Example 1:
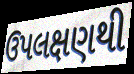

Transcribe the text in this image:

ઉપલક્ષણથી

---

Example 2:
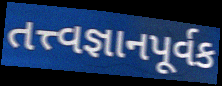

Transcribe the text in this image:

તત્ત્વજ્ઞાનપૂર્વક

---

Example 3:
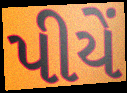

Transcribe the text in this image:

પીયેં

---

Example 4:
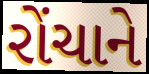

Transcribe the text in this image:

રોંચાને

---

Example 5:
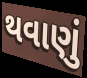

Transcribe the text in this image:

થવાણું